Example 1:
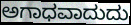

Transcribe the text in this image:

ಅಗಾಧವಾದುದು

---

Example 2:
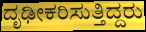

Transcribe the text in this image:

ದೃಢೀಕರಿಸುತ್ತಿದ್ದರು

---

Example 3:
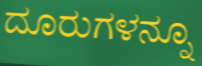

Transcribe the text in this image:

ದೂರುಗಳನ್ನೂ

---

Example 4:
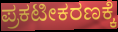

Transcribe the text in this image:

ಪ್ರಕಟೀಕರಣಕ್ಕೆ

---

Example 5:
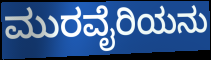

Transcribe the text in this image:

ಮುರವೈರಿಯನು